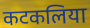
कटकलिया